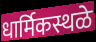
धार्मिकस्थळे